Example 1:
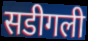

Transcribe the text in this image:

सडीगली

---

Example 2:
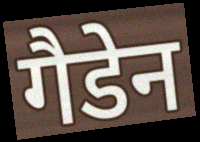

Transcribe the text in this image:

गैडेन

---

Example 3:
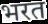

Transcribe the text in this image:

भरत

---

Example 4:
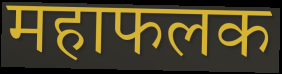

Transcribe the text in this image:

महाफलक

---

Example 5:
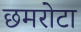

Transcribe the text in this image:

छमरोटा